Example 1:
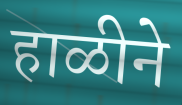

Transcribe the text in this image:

हाळीने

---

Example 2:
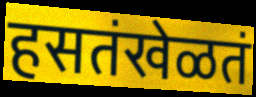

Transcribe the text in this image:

हसतंखेळतं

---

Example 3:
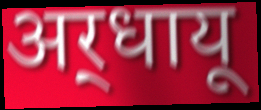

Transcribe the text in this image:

अर्धायू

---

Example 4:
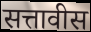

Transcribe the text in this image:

सत्तावीस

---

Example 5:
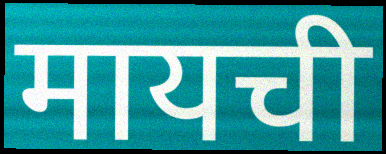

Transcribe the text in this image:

मायची